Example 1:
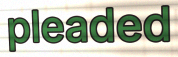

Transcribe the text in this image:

pleaded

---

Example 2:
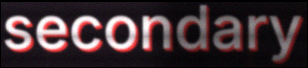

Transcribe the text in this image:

secondary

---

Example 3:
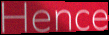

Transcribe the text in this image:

Hence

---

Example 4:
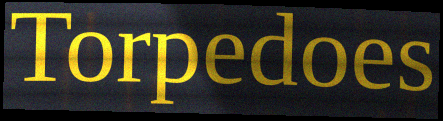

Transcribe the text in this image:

Torpedoes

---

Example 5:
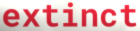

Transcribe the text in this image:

extinct